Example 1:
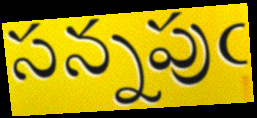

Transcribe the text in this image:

సన్నపుఁ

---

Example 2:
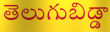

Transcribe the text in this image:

తెలుగుబిడ్డా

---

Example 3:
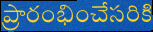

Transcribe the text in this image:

ప్రారంభించేసరికి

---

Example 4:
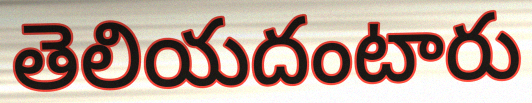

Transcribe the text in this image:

తెలియదంటారు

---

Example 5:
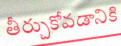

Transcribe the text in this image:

తీర్చుకోవడానికి